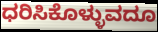
ಧರಿಸಿಕೊಳ್ಳುವದೂ